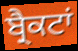
ਬ੍ਰੈਕਟਾਂ